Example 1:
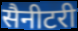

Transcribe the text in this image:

सैनीटरी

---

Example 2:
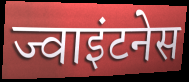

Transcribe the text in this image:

ज्वाइंटनेस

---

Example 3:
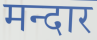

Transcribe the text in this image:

मन्दार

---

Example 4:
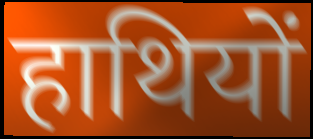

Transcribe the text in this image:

हाथियों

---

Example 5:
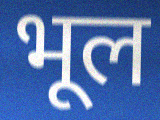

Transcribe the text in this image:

भूल